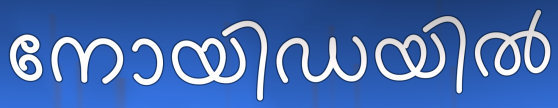
നോയിഡയിൽ